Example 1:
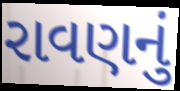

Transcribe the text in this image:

રાવણનું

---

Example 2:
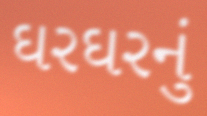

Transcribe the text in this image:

ઘરઘરનું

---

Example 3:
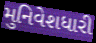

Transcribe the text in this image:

મુનિવેશધારી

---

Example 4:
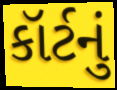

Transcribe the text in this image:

કૉર્ટનું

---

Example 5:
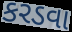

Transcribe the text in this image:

કરડવા